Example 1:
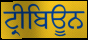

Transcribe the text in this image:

ਟ੍ਰੀਬਿਊਨ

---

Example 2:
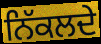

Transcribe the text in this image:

ਨਿੱਕਲਦੇ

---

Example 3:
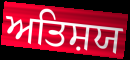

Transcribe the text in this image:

ਅਤਿਸ਼ਯ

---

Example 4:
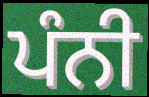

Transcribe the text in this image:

ਪੰਨੀ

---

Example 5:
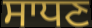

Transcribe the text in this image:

ਸਾਧਣ